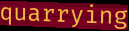
quarrying